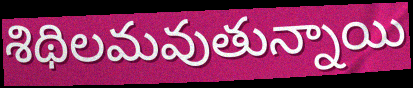
శిథిలమవుతున్నాయి